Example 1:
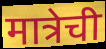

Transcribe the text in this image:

मात्रेची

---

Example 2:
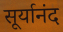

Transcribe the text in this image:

सूर्यानंद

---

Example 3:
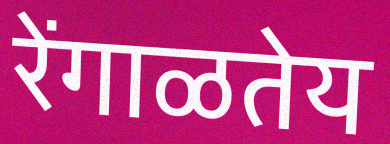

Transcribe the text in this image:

रेंगाळतेय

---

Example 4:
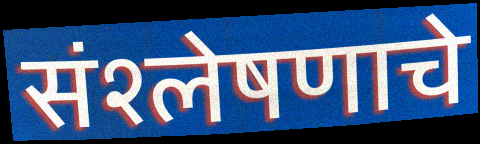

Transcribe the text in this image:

संश्लेषणाचे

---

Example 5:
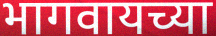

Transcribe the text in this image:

भागवायच्या